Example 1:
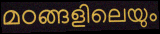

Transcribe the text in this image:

മഠങ്ങളിലെയും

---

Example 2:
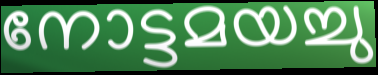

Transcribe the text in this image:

നോട്ടമയച്ചു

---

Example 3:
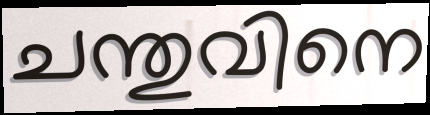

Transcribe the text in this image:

ചന്തുവിനെ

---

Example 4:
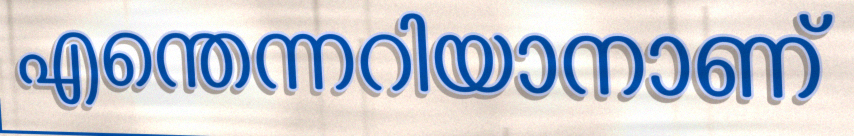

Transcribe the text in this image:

എന്തെന്നറിയാനാണ്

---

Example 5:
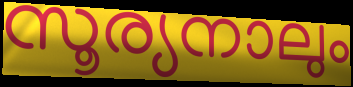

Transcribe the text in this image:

സൂര്യനാലും